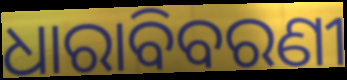
ଧାରାବିବରଣୀ